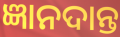
ଜ୍ଞାନଦାନ୍ତ